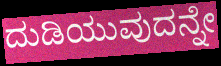
ದುಡಿಯುವುದನ್ನೇ